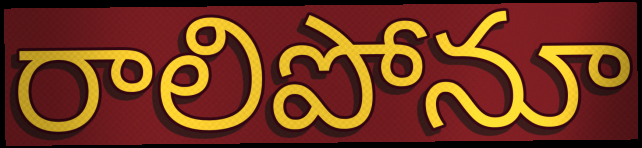
రాలిపోనూ